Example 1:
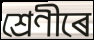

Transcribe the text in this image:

শ্ৰেণীৰে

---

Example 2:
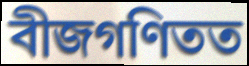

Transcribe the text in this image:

বীজগণিতত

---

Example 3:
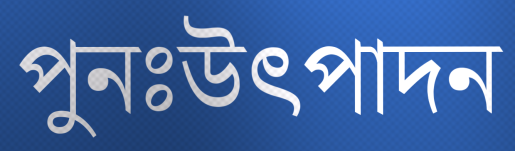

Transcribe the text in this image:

পুনঃউৎপাদন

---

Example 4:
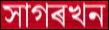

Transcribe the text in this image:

সাগৰখন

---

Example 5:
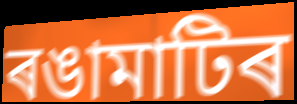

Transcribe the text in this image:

ৰঙামাটিৰ